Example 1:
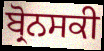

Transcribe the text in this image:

ਬ੍ਰੋਨਸਕੀ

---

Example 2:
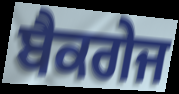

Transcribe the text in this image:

ਬੈਕਗੇਜ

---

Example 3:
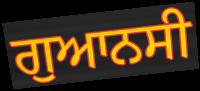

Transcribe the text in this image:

ਗੁਆਨਸੀ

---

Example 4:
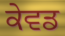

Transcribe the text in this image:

ਕੇਵਡ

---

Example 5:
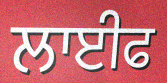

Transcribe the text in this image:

ਲਾਈਫ